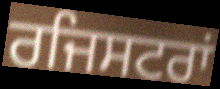
ਰਜਿਸਟਰਾਂ